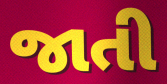
જાતી